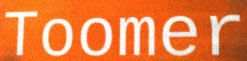
Toomer